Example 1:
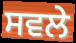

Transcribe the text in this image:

ਸਵਲੇ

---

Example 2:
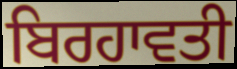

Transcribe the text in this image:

ਬਿਰਹਾਵਤੀ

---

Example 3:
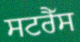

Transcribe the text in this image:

ਸਟਰੈੱਸ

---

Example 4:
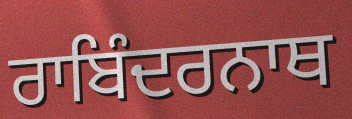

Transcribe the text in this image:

ਰਾਬਿੰਦਰਨਾਥ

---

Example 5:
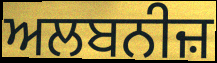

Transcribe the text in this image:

ਅਲਬਨੀਜ਼